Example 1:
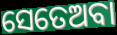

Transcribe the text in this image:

ସେତେଅବା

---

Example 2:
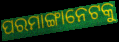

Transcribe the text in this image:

ପରମାଙ୍ଗାନେଟକୁ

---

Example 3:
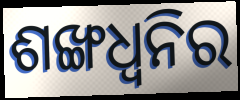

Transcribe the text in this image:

ଶଙ୍ଖଧ୍ବନିର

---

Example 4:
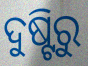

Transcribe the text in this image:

ଦୁଷ୍ଟିରୁ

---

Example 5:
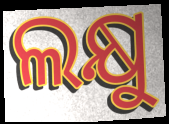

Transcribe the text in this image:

ଲକ୍ଷୁ